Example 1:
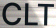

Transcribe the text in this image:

CLT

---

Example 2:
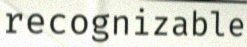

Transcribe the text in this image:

recognizable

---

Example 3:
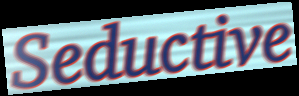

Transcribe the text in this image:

Seductive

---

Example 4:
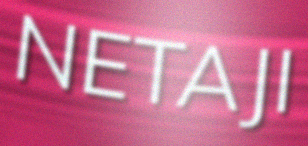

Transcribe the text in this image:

NETAJI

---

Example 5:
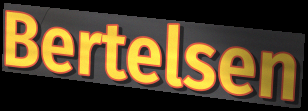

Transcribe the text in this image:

Bertelsen